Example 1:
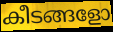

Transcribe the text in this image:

കീടങ്ങളോ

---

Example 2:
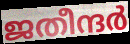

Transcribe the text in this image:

ജതീന്ദർ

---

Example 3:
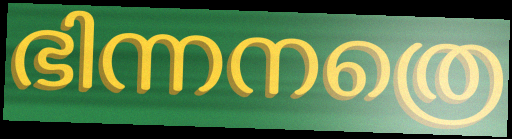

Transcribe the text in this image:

ഭിന്നനത്രെ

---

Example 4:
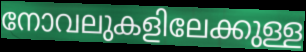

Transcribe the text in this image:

നോവലുകളിലേക്കുള്ള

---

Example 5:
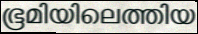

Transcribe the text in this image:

ഭൂമിയിലെത്തിയ